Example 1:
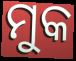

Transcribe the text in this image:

ମୁକ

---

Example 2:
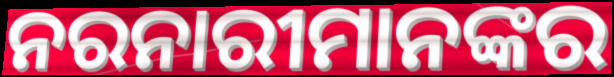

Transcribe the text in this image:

ନରନାରୀମାନଙ୍କର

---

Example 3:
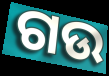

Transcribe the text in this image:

ଗଉ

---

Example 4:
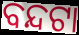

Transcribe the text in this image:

ବନ୍ଦଟା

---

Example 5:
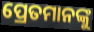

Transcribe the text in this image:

ପ୍ରେତମାନଙ୍କୁ